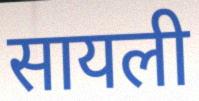
सायली